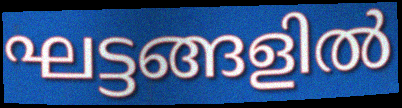
ഘട്ടങ്ങളിൽ